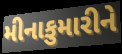
મીનાકુમારીને